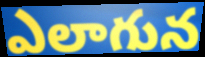
ఎలాగున